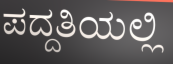
ಪದ್ದತಿಯಲ್ಲಿ